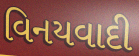
વિનયવાદી